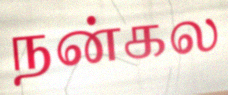
நன்கல